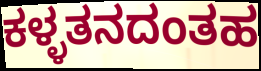
ಕಳ್ಳತನದಂತಹ